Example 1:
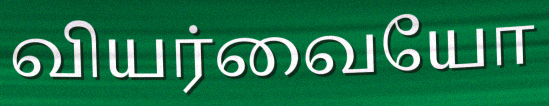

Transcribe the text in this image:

வியர்வையோ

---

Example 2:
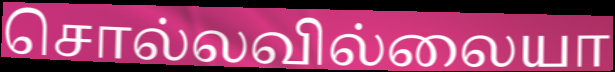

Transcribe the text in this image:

சொல்லவில்லையா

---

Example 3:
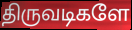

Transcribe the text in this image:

திருவடிகளே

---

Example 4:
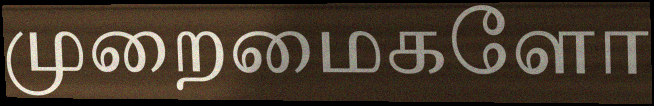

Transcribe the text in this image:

முறைமைகளோ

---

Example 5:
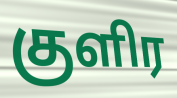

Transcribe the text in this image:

குளிர